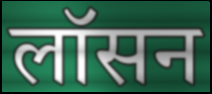
लॉसन